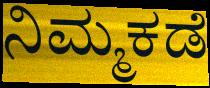
ನಿಮ್ಮಕಡೆ